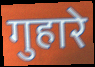
गुहारे